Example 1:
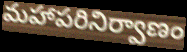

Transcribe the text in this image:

మహాపరినిర్వాణం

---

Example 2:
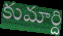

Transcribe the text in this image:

కుమార్ది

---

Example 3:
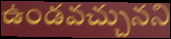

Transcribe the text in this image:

ఉండవచ్చునని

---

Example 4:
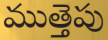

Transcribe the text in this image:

ముత్తెపు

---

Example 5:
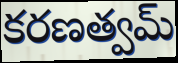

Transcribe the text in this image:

కరణత్వమ్